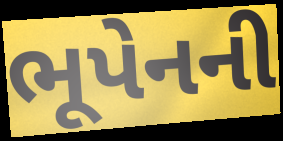
ભૂપેનની